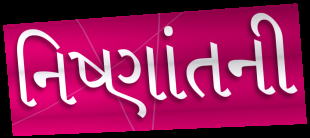
નિષ્ણાંતની